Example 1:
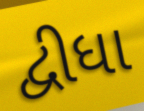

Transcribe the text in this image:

દ્વીધા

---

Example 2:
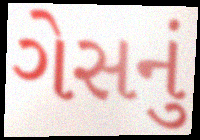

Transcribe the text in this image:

ગેસનું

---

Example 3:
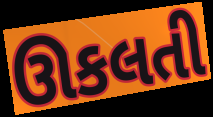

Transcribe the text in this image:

ઊકલતી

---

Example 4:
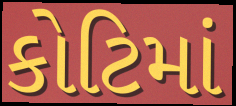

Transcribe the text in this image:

કોટિમાં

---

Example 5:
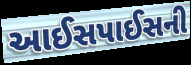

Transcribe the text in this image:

આઈસપાઈસની